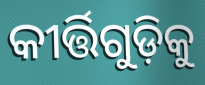
କୀର୍ତ୍ତିଗୁଡ଼ିକୁ